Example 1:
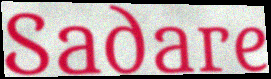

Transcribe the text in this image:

Sadare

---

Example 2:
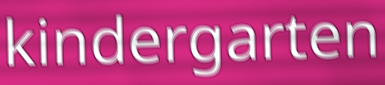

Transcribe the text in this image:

kindergarten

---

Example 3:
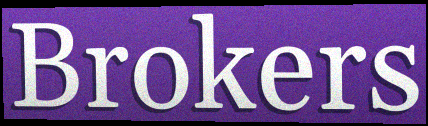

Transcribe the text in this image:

Brokers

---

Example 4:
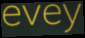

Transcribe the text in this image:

evey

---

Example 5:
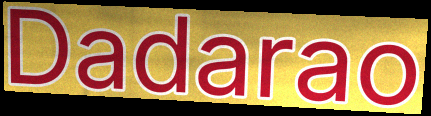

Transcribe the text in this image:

Dadarao